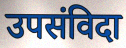
उपसंविदा